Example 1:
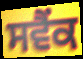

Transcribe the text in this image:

ਸਵੈਂਕ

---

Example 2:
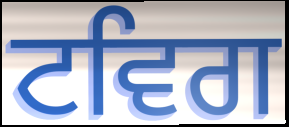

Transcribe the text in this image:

ਟਵਿਗ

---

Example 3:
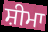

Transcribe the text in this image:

ਸ਼ੀਮਾ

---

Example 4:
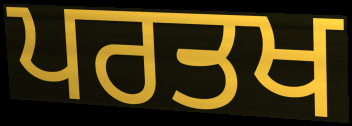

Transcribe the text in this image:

ਪਰਤਖ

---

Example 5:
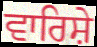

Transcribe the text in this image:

ਵਾਰਿਸ਼ੇ